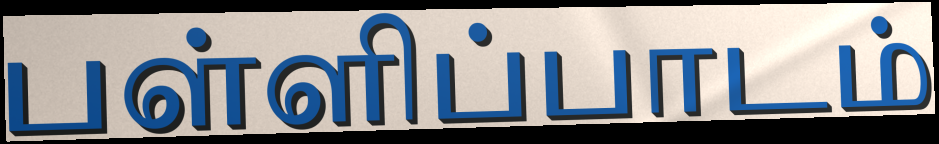
பள்ளிப்பாடம்